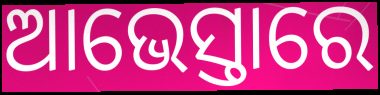
ଆଭେସ୍ତାରେ